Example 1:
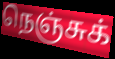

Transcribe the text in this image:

நெஞ்சுக்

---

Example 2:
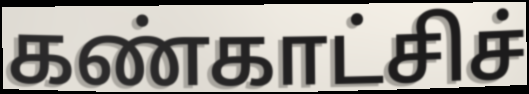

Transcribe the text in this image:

கண்காட்சிச்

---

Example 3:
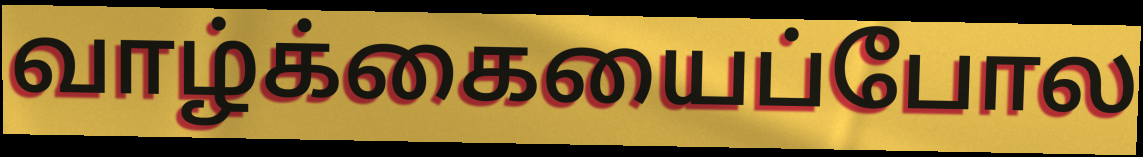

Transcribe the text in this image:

வாழ்க்கையைப்போல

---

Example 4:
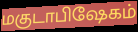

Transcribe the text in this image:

மகுடாபிஷேகம்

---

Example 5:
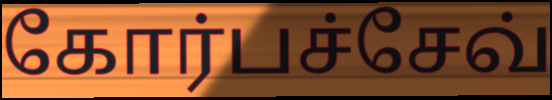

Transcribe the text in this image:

கோர்பச்சேவ்